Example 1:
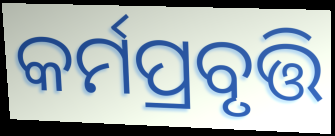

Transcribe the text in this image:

କର୍ମପ୍ରବୃତ୍ତି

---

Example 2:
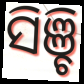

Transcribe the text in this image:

ସିଞ୍ଚି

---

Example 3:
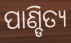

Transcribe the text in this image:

ପାଣ୍ଡିତ୍ୟ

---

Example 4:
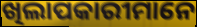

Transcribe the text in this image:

ଖିଲାପକାରୀମାନେ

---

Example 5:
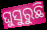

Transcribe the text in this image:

ଘୁସୁରୁଛି